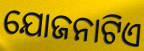
ଯୋଜନାଟିଏ